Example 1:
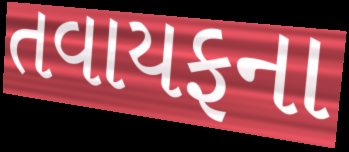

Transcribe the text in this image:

તવાયફના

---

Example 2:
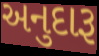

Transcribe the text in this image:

અનુદારૂ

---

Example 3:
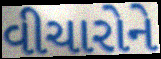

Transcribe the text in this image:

વીચારોને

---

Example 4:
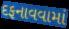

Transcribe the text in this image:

દફનાવવામાં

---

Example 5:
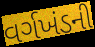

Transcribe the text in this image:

વર્ગખંડની